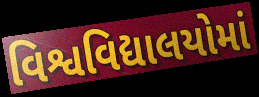
વિશ્વવિદ્યાલયોમાં